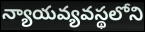
న్యాయవ్యవస్థలోని